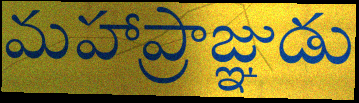
మహాప్రాజ్ఞుడు